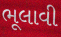
ભૂલાવી